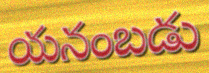
యనంబడు